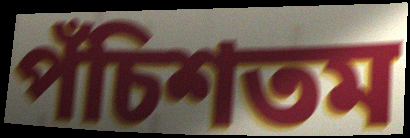
পঁচিশতম